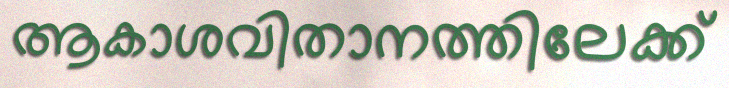
ആകാശവിതാനത്തിലേക്ക്